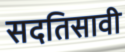
सदतिसावी